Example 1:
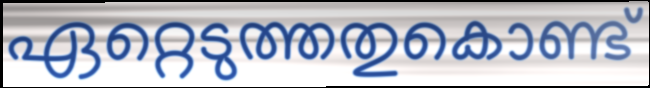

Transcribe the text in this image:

ഏറ്റെടുത്തതുകൊണ്ട്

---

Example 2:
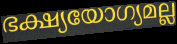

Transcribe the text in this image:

ഭക്ഷ്യയോഗ്യമല്ല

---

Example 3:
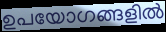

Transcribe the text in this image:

ഉപയോഗങ്ങളിൽ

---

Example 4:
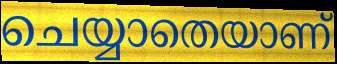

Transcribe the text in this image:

ചെയ്യാതെയാണ്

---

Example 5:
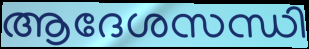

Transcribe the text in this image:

ആദേശസന്ധി